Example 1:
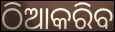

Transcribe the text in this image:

ଠିଆକରିବ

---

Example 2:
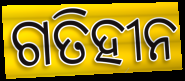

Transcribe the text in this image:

ଗତିହୀନ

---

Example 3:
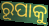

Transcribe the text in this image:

ରୂପାକୁ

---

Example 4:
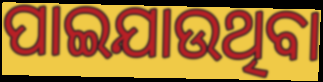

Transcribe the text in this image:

ପାଇଯାଉଥିବା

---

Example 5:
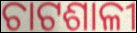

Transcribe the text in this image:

ଚାଟଶାଳୀ